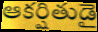
ఆకర్షితుడై